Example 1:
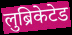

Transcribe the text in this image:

लुब्रिकेटेड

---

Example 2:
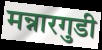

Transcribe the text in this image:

मन्नारगुडी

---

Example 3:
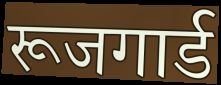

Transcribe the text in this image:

रूजगार्ड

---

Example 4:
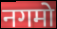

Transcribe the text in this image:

नगमो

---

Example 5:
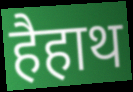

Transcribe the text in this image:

हैहाथ